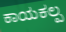
ಕಾಯಕಲ್ಪ